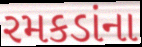
રમકડાંના